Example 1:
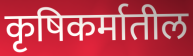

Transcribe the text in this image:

कृषिकर्मातील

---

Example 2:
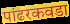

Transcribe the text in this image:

पांढरकवडा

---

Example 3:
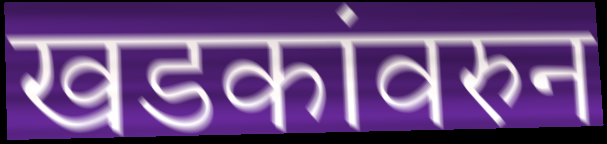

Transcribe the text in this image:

खडकांवरुन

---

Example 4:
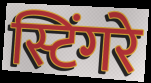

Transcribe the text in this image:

स्टिंगरे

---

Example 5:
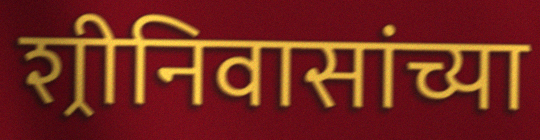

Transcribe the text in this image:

श्रीनिवासांच्या